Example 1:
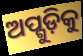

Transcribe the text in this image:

ଅପ୍ଗୁଡ଼ିକୁ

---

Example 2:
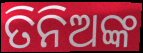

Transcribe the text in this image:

ତିନିଅଙ୍କ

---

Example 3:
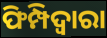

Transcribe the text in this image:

ଫିମ୍ପିଦ୍ଵାରା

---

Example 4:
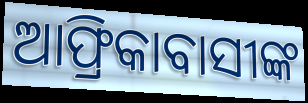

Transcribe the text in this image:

ଆଫ୍ରିକାବାସୀଙ୍କ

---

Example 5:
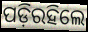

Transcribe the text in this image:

ପଡ଼ିରହିଲେ